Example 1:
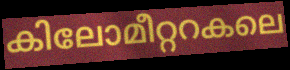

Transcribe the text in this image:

കിലോമീറ്ററകലെ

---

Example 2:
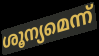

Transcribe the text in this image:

ശൂന്യമെന്ന്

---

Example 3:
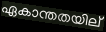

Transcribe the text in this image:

ഏകാന്തതയില്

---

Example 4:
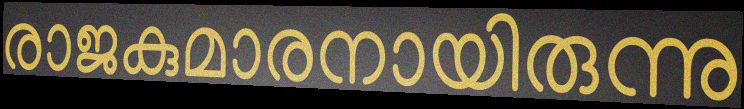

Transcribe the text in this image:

രാജകുമാരനായിരുന്നു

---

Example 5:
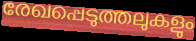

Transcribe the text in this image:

രേഖപ്പെടുത്തലുകളും